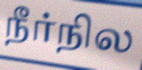
நீர்நில